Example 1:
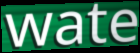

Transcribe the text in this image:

wate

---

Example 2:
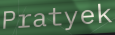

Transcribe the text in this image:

Pratyek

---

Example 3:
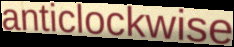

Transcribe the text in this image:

anticlockwise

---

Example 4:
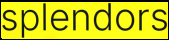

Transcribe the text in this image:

splendors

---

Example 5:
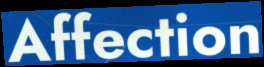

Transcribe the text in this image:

Affection